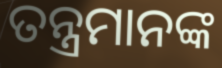
ତନ୍ତ୍ରମାନଙ୍କ